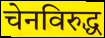
चेनविरुद्ध